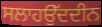
ਸਲਾਹਉੱਦਦੀਨ